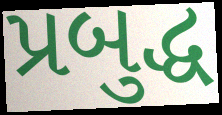
પ્રબુદ્ધ